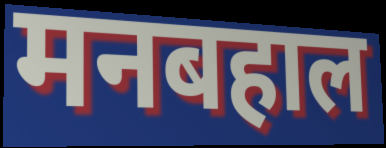
मनबहाल